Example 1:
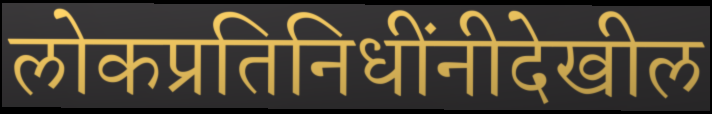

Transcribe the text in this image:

लोकप्रतिनिधींनीदेखील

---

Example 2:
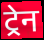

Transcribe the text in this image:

ट्रेन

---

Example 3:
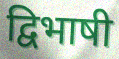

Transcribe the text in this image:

द्विभाषी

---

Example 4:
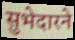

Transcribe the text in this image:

सुभेदारने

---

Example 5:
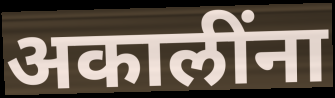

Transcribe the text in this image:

अकालींना